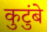
कुटुंबे